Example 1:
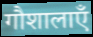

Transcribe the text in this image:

गौशालाएँ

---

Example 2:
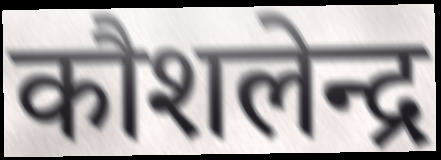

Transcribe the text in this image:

कौशलेन्द्र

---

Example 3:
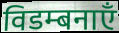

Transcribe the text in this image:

विडम्बनाएँ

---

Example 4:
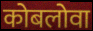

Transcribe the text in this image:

कोबलोवा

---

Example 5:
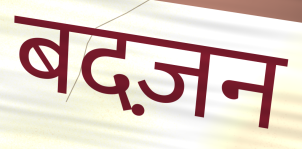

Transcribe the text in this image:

बदज़न